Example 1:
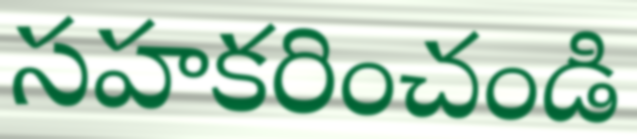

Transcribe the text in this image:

సహకరించండి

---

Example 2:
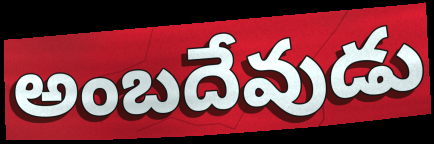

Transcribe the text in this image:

అంబదేవుడు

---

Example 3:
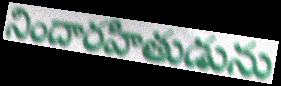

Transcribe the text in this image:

నిందారహితుడును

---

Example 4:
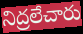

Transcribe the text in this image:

నిద్రలేచారు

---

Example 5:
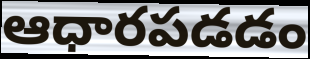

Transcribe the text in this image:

ఆధారపడడం